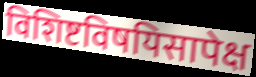
विशिष्टविषयिसापेक्ष